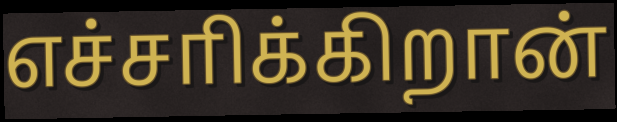
எச்சரிக்கிறான்